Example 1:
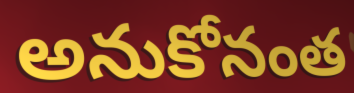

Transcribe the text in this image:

అనుకోనంత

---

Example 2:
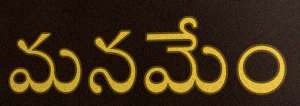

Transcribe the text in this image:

మనమేం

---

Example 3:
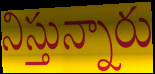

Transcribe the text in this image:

నిస్తున్నారు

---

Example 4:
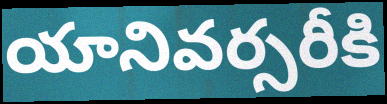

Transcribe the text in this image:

యానివర్సరీకి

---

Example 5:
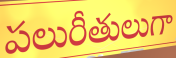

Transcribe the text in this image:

పలురీతులుగా